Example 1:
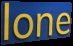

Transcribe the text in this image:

lone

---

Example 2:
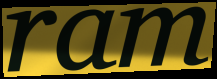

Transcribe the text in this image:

ram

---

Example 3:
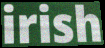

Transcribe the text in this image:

irish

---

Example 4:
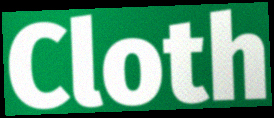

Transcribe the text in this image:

Cloth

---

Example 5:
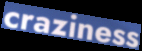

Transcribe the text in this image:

craziness